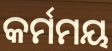
କର୍ମମୟ